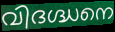
വിദഗ്ദ്ധനെ